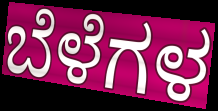
ಬೆಳೆಗಳ